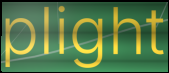
plight